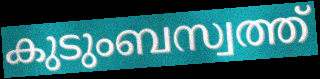
കുടുംബസ്വത്ത്